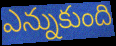
ఎన్నుకుంది